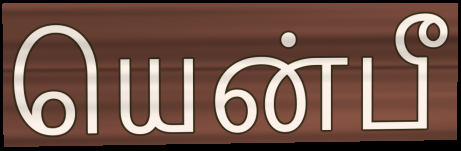
யென்பீ